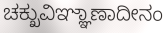
ಚಕ್ಖುವಿಞ್ಞಾಣಾದೀನಂ